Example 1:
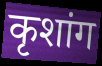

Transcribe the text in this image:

कृशांग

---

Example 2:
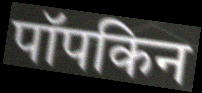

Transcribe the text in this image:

पॉपकिन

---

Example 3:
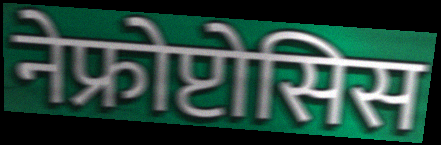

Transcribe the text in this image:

नेफ्रोप्टोसिस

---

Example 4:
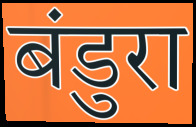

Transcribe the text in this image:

बंडुरा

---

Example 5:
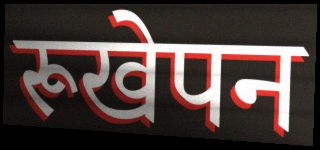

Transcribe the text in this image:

रूखेपन